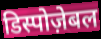
डिस्पोज़ेबल